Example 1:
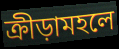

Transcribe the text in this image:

ক্রীড়ামহলে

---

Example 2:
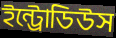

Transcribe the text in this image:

ইন্ট্রোডিউস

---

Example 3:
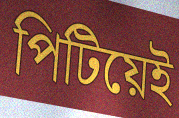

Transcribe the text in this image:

পিটিয়েই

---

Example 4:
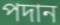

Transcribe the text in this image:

পদান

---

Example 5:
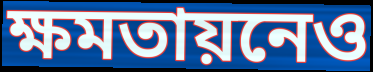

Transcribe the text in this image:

ক্ষমতায়নেও